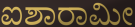
ಐಶಾರಾಮೀ